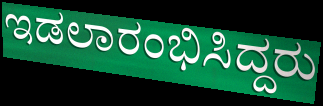
ಇಡಲಾರಂಭಿಸಿದ್ದರು